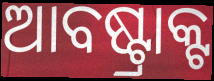
ଆବଷ୍ଟ୍ରାକ୍ଟ